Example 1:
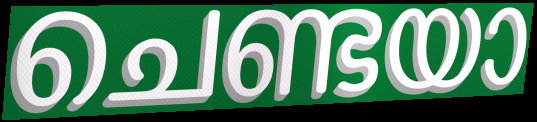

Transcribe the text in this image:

ചെണ്ടയാ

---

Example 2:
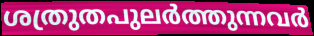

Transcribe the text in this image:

ശത്രുതപുലർത്തുന്നവർ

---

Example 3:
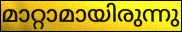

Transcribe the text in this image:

മാറ്റാമായിരുന്നു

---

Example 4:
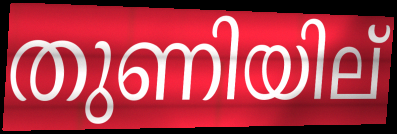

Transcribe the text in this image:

തുണിയില്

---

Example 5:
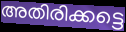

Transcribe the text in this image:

അതിരിക്കട്ടെ